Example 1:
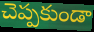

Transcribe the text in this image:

చెప్పకుండా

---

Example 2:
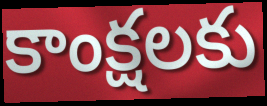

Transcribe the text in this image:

కాంక్షలకు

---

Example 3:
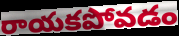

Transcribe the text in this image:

రాయకపోవడం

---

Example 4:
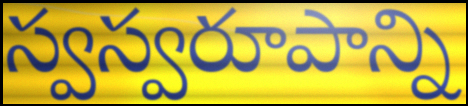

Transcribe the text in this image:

స్వస్వరూపాన్ని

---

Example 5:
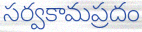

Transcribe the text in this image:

సర్వకామప్రదం